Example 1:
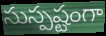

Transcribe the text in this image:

సుస్పష్టంగా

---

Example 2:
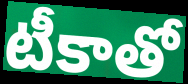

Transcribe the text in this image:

టీకాతో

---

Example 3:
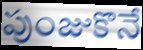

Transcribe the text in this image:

పుంజుకొనే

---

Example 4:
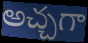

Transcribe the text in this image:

అచ్చగా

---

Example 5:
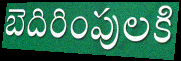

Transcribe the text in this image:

బెదిరింపులకి